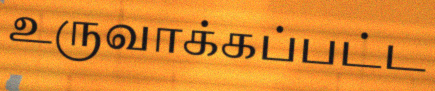
உருவாக்கப்பட்ட